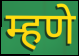
म्हणे